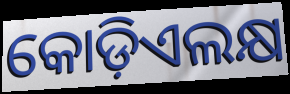
କୋଡ଼ିଏଲକ୍ଷ